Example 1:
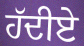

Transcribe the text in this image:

ਹੱਦੀਏ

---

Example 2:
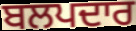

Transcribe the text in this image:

ਬਲਪਦਾਰ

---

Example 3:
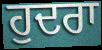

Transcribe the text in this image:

ਹੁਦਰਾ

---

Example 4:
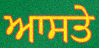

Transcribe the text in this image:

ਆਸਤੇ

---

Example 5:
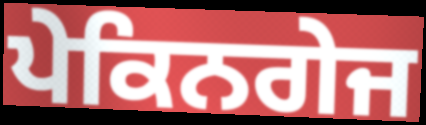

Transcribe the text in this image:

ਪੇਕਿਨਗੇਜ